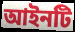
আইনটি